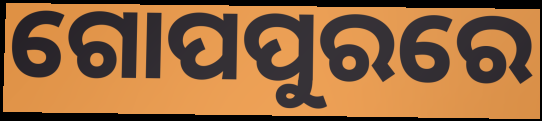
ଗୋପପୁରରେ